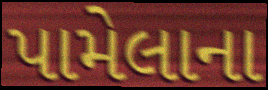
પામેલાના